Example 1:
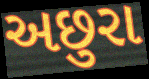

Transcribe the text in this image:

અછુરા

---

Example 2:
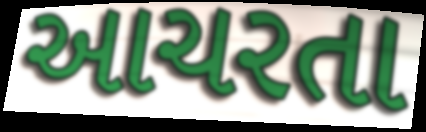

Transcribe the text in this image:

આચરતા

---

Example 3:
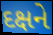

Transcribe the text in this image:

દક્ષને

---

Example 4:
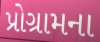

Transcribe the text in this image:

પ્રોગ્રામના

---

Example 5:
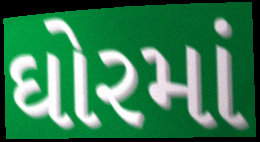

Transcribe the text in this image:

ઘોરમાં